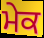
ਮੇਕ